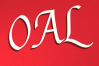
OAL